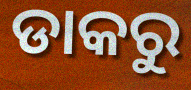
ଡାକରୁ